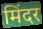
मिंदर